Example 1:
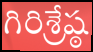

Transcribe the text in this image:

గిరిశ్రేష్ఠ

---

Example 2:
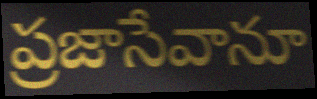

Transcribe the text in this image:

ప్రజాసేవానూ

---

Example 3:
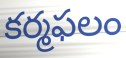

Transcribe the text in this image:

కర్మఫలం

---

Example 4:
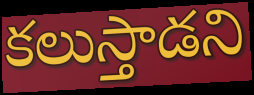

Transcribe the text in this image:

కలుస్తాడని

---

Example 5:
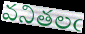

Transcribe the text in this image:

వనితలఁ